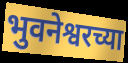
भुवनेश्वरच्या